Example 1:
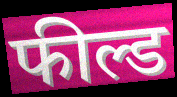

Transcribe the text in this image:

फील्ड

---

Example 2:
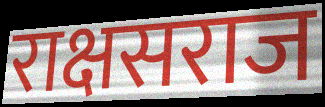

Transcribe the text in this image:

राक्षसराज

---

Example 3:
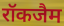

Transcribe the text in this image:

रॉकजैम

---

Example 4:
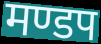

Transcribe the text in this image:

मण्‍डप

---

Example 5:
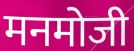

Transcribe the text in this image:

मनमोजी